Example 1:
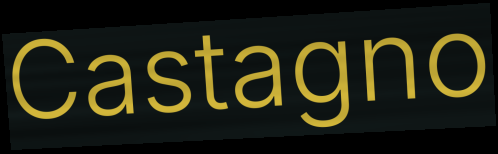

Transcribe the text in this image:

Castagno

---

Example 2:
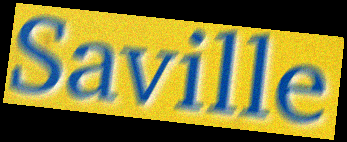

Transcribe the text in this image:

Saville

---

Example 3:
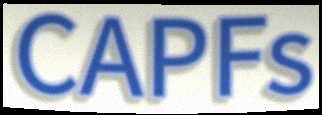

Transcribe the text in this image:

CAPFs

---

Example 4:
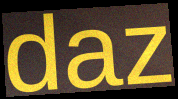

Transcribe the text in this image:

daz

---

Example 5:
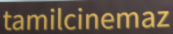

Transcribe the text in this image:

tamilcinemaz